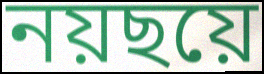
নয়ছয়ে